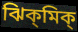
ঝিক্‌মিক্